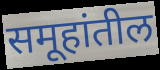
समूहांतील